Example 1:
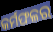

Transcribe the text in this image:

କର୍ମଫଳର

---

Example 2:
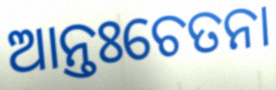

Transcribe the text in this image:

ଆନ୍ତଃଚେତନା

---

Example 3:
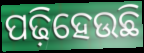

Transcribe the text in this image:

ପଢ଼ିହେଉଛି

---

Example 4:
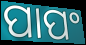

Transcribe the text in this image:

ପାପଂ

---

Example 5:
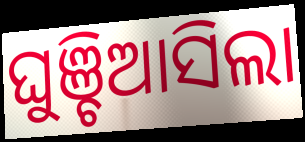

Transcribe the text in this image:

ଘୁଞ୍ଚିଆସିଲା